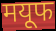
मयूफ